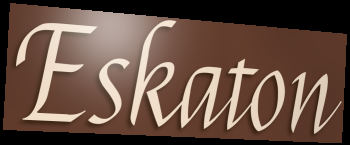
Eskaton